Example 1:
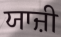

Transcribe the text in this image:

ਯਾਜ਼ੀ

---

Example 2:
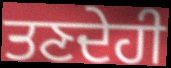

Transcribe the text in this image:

ਤਣਦੇਹੀ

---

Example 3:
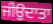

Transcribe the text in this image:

ਜੀਉਦਾਤਾ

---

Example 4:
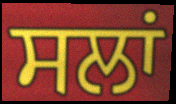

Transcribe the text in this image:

ਸਲਾਂ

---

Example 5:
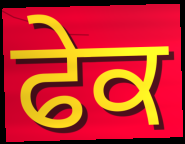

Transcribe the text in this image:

ਫੇਕ